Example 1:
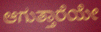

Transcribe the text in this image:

ಆಗುತ್ತಾರೆಯೇ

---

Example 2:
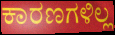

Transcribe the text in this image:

ಕಾರಣಗಳಿಲ್ಲ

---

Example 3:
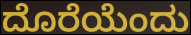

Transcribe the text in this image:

ದೊರೆಯೆಂದು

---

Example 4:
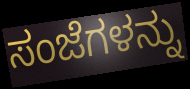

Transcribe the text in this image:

ಸಂಜೆಗಳನ್ನು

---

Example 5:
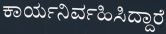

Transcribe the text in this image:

ಕಾರ್ಯನಿರ್ವಹಿಸಿದ್ದಾರೆ